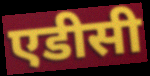
एडीसी